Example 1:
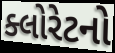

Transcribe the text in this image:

ક્લોરેટનો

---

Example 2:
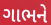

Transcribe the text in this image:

ગાભને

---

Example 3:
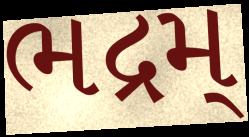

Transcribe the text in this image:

ભદ્રમ્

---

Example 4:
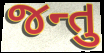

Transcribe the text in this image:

જન્તુ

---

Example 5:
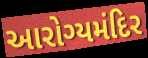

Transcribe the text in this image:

આરોગ્યમંદિર